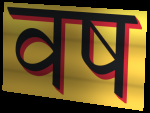
वष